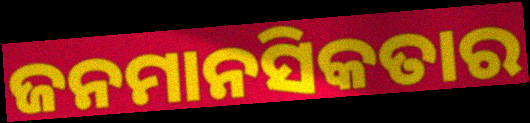
ଜନମାନସିକତାର